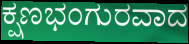
ಕ್ಷಣಭಂಗುರವಾದ